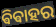
ଵିଵାହର